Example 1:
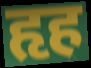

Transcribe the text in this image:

हृह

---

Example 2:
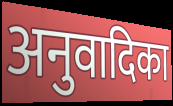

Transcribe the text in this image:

अनुवादिका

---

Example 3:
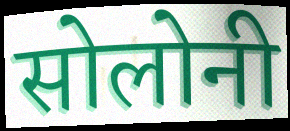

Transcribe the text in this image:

सोलोनी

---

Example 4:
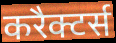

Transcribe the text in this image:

करैक्टर्स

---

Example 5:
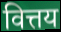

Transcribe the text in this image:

वित्तय